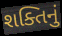
શક્તિનું